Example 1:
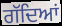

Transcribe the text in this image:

ਗੱਦਿਆਂ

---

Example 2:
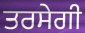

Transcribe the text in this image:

ਤਰਸੇਗੀ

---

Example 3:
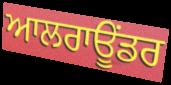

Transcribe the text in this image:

ਆਲਰਾਊਂਡਰ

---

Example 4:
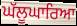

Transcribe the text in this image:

ਘੱਲੂਘਾਰਿਆ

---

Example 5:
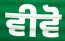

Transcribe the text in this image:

ਵੀਵੋ